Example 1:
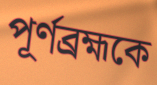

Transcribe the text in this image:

পূর্ণব্রহ্মকে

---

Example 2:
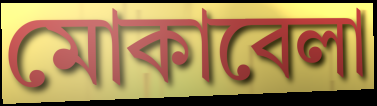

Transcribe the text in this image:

মোকাবেলা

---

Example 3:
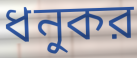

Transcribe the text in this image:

ধনুকর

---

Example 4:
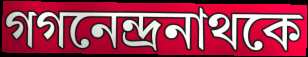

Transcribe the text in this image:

গগনেন্দ্রনাথকে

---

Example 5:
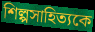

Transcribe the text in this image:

শিল্পসাহিত্যকে